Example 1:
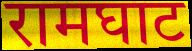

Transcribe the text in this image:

रामघाट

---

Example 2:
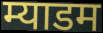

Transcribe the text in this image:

म्याडम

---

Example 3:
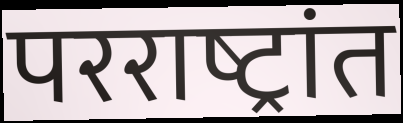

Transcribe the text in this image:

परराष्ट्रांत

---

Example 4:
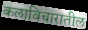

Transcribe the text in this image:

कलाविचारातील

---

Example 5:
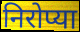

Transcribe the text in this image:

निरोप्या